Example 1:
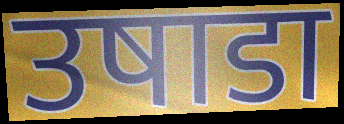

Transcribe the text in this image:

उषाडा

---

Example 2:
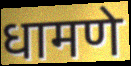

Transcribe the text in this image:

धामणे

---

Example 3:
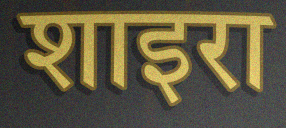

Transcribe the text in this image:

शाइरा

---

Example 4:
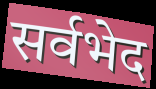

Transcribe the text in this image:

सर्वभेद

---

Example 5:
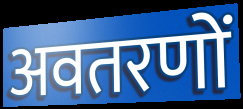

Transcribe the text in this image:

अवतरणों